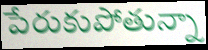
పేరుకుపోతున్నా